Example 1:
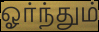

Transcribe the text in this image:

ஓர்ந்தும்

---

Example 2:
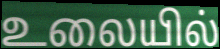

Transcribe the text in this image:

உலையில்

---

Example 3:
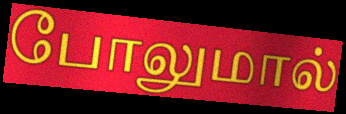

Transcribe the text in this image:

போலுமால்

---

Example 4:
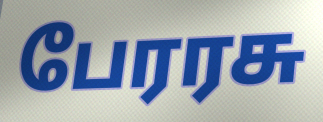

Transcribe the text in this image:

பேரரசு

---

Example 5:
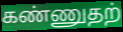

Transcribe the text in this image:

கண்ணுதற்